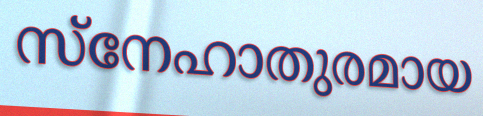
സ്നേഹാതുരമായ